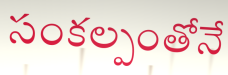
సంకల్పంతోనే